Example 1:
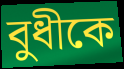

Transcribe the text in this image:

বুধীকে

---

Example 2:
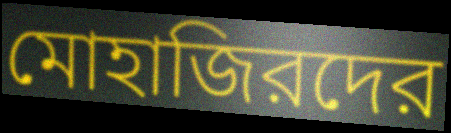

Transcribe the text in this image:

মোহাজিরদের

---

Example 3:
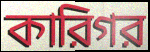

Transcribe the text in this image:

কারিগর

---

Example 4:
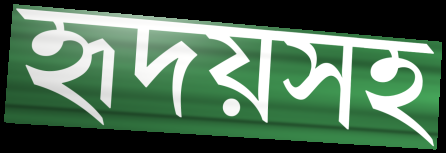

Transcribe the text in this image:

হৃদয়সহ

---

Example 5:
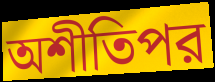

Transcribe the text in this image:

অশীতিপর